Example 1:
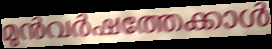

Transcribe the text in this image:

മുൻവർഷത്തേക്കാൾ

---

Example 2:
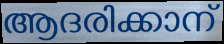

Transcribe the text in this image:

ആദരിക്കാന്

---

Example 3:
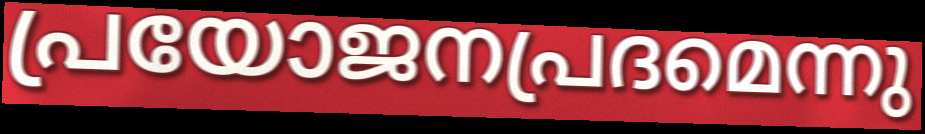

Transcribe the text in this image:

പ്രയോജനപ്രദമെന്നു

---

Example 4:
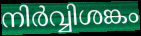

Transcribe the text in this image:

നിർവ്വിശങ്കം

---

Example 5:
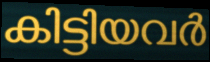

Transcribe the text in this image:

കിട്ടിയവർ